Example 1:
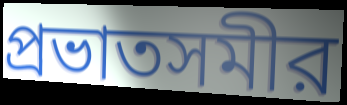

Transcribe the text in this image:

প্রভাতসমীর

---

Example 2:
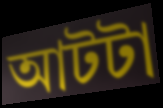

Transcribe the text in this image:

আটটা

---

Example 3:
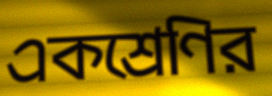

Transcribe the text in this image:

একশ্রেণির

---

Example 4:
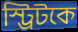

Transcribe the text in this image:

স্ট্রিটকে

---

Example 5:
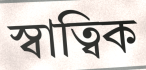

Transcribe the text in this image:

স্বাত্বিক